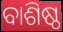
ବାଶିଷ୍ଠ